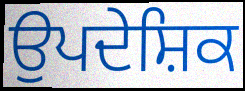
ਉਪਦੇਸ਼ਿਕ